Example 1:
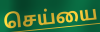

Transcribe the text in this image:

செய்யை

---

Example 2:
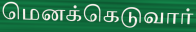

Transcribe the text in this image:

மெனக்கெடுவார்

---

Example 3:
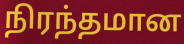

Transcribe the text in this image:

நிரந்தமான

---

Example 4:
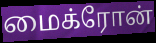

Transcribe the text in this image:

மைக்ரோன்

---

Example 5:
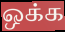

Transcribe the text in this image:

ஒக்க